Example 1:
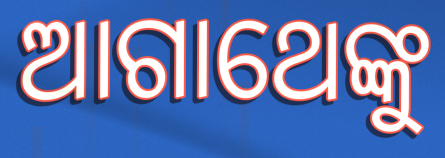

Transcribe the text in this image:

ଆଗାଥେଙ୍କୁ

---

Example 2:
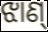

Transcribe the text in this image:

ଝାଣ୍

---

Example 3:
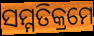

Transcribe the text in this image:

ସମ୍ମତିକ୍ରମେ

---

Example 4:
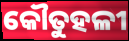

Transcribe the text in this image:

କୌତୁହଳୀ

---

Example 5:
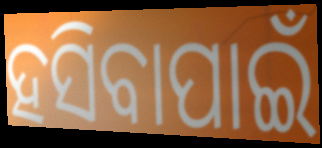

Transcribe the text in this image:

ହସିବାପାଇଁ